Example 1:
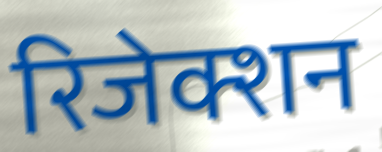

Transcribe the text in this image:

रिजेक्शन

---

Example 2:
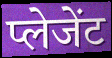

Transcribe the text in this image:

प्लेजेंट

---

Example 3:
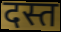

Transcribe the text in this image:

दस्त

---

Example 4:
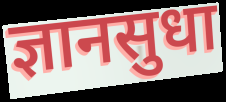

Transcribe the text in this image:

ज्ञानसुधा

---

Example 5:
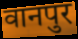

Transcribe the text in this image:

वानपुर